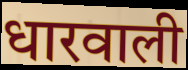
धारवाली